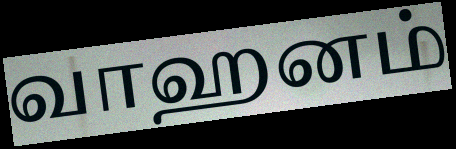
வாஹனம்